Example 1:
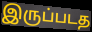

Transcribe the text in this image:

இருப்படத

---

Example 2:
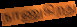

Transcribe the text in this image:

நாணுகிறது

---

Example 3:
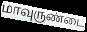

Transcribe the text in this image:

மாவுருண்டை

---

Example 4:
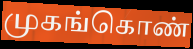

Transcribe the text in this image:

முகங்கொண்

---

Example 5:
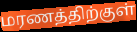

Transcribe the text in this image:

மரணத்திற்குள்